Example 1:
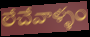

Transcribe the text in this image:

లేచేవాళ్ళం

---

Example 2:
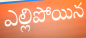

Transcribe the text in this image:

ఎల్లిపోయిన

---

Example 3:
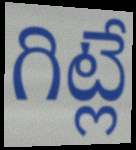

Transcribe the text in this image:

గిట్లే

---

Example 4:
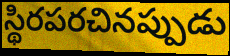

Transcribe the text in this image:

స్థిరపరచినప్పుడు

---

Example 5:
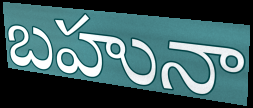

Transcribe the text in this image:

బహునా